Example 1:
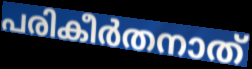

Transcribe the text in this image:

പരികീർതനാത്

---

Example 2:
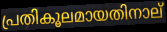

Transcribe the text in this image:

പ്രതികൂലമായതിനാല്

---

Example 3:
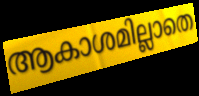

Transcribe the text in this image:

ആകാശമില്ലാതെ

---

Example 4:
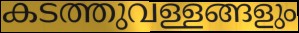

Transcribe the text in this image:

കടത്തുവള്ളങ്ങളും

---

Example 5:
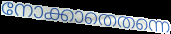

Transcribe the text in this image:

നോക്കാതെതന്നെ